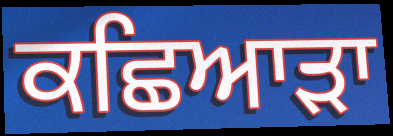
ਕਛਿਆੜਾ